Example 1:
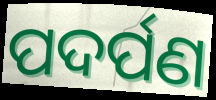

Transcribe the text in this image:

ପଦର୍ପଣ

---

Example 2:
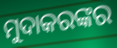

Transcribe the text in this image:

ମୁଦାକରଙ୍କର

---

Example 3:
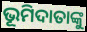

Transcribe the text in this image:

ଭୂମିଦାତାଙ୍କୁ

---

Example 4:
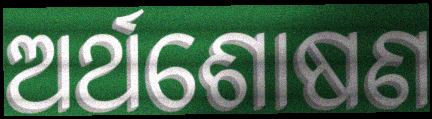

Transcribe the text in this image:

ଅର୍ଥଶୋଷଣ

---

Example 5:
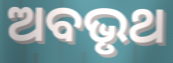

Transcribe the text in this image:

ଅବଭୃଥ